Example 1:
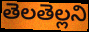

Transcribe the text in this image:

తెలతెల్లని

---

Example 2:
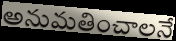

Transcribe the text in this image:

అనుమతించాలనే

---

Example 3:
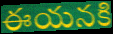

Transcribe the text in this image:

ఈయనకి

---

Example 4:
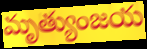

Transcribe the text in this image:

మృత్యుంజయ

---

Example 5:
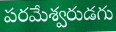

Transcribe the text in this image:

పరమేశ్వరుడగు